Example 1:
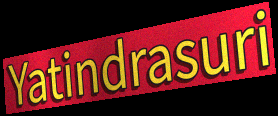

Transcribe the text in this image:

Yatindrasuri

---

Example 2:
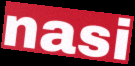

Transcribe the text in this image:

nasi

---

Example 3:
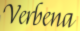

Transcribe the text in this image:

Verbena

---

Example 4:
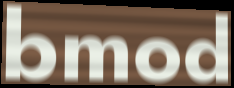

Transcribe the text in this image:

bmod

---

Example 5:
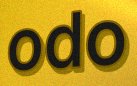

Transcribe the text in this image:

odo